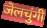
जेलचुंगी